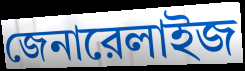
জেনারেলাইজ